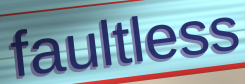
faultless